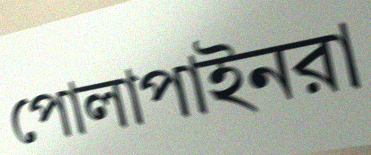
পোলাপাইনরা